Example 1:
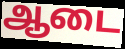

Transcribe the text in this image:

ஆடை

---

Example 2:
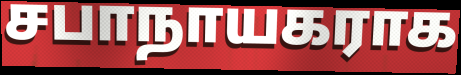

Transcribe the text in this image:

சபாநாயகராக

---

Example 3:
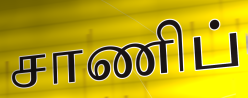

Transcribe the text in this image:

சாணிப்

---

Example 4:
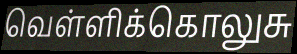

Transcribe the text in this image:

வெள்ளிக்கொலுசு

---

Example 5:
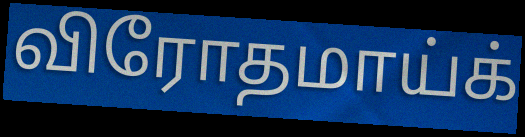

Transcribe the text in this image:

விரோதமாய்க்